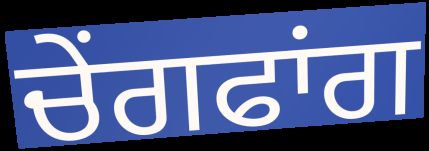
ਚੇਂਗਫਾਂਗ